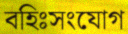
বহিঃসংযোগ